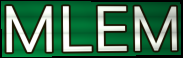
MLEM